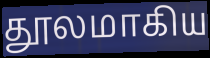
தூலமாகிய